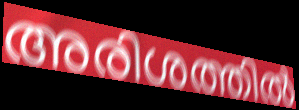
അരിശത്തിൽ